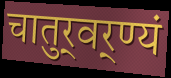
चातुर्वर्ण्यं